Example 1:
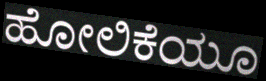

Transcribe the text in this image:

ಹೋಲಿಕೆಯೂ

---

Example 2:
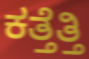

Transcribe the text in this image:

ಕತ್ತೆತ್ತಿ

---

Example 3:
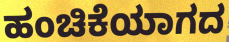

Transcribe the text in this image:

ಹಂಚಿಕೆಯಾಗದ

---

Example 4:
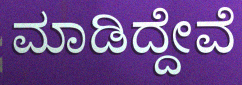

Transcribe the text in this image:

ಮಾಡಿದ್ದೇವೆ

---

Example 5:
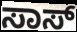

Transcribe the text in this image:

ಸಾಸ್